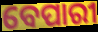
ବେପାରୀ